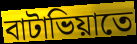
বাটাভিয়াতে